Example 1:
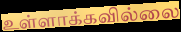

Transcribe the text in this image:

உள்ளாக்கவில்லை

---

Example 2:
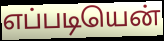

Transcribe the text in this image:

எப்படியென்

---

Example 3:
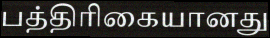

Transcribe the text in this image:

பத்திரிகையானது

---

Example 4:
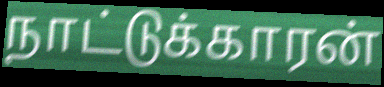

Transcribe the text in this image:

நாட்டுக்காரன்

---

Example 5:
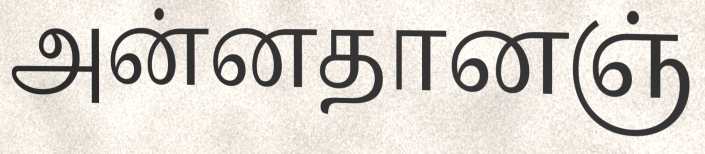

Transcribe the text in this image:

அன்னதானஞ்